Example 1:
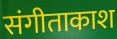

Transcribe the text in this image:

संगीताकाश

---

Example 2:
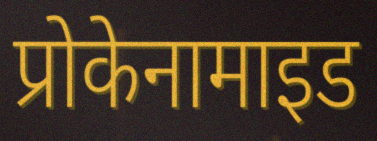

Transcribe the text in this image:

प्रोकेनामाइड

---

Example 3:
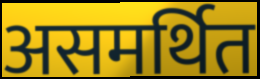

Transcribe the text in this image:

असमर्थित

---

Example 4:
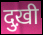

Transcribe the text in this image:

दुख़ी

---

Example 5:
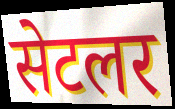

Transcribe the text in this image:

सेटलर